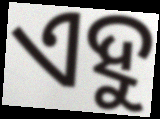
ଏହୁ